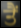
ਤੈਂ